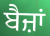
ਬੈਜ਼ਾਂ